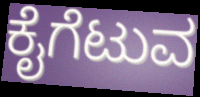
ಕೈಗೆಟುವ